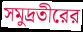
সমুদ্রতীরের